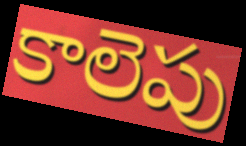
కాలెపు